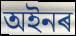
অইনৰ